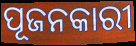
ପୂଜନକାରୀ